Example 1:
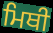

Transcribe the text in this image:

ਮਿਥੀ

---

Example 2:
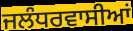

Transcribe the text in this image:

ਜਲੰਧਰਵਾਸੀਆਂ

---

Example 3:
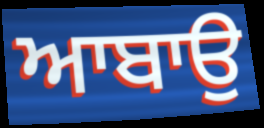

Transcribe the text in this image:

ਆਬਾਉ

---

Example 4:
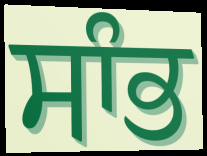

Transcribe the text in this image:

ਸਾੰਭ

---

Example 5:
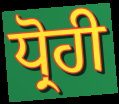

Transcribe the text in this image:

ਧ੍ਰੋਹੀ